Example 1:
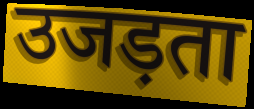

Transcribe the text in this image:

उजड़ता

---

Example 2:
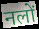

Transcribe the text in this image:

नलों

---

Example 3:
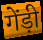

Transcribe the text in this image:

गेंड़ी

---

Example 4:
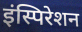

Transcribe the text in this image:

इंस्पिरेशन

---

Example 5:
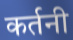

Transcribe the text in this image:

कर्तनी